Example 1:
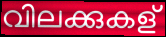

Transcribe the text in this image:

വിലക്കുകള്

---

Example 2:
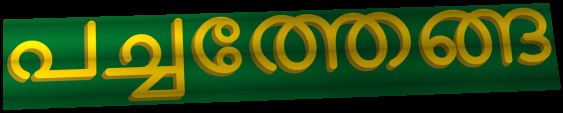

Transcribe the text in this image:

പച്ചത്തേങ്ങ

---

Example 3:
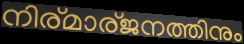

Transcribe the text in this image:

നിര്മാര്ജനത്തിനും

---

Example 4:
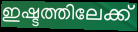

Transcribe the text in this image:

ഇഷ്ടത്തിലേക്ക്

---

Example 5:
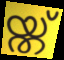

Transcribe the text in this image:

യ്ത്